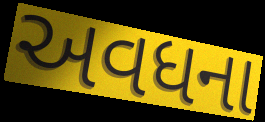
અવધના